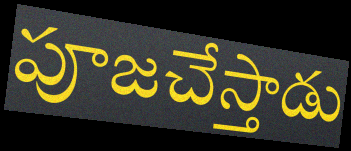
పూజచేస్తాడు